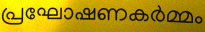
പ്രഘോഷണകർമ്മം